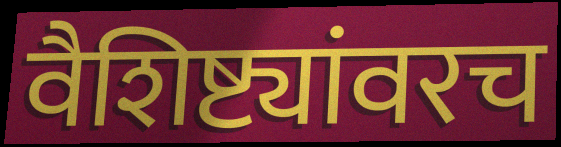
वैशिष्ट्यांवरच